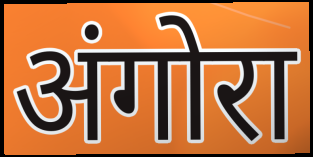
अंगोरा